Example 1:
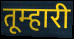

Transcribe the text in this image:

तूम्हारी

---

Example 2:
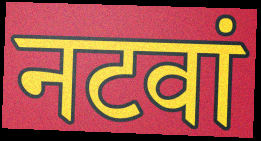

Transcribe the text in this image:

नटवां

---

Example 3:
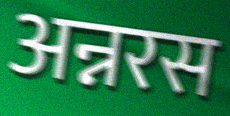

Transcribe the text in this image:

अन्नरस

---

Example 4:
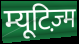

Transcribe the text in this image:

म्यूटिज़्म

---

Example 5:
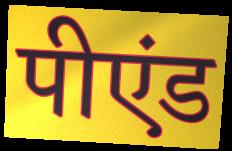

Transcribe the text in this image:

पीएंड